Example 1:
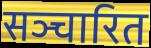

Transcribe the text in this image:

सञ्चारित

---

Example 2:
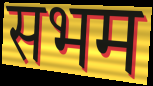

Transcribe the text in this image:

सभम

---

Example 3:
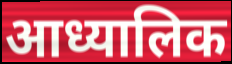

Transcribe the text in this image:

आध्यालिक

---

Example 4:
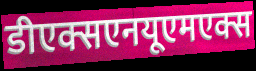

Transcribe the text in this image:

डीएक्सएनयूएमएक्स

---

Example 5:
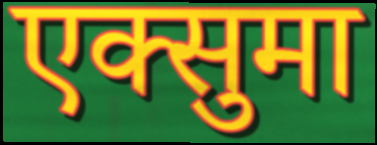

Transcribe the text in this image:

एक्सुमा